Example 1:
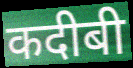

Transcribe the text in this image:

कदीबी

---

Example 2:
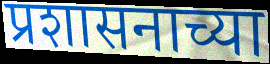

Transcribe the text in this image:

प्रशासनाच्या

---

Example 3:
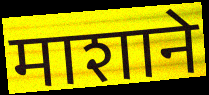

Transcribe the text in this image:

माशाने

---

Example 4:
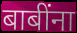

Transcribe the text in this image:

बाबींना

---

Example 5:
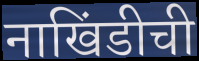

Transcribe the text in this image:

नाखिंडीची